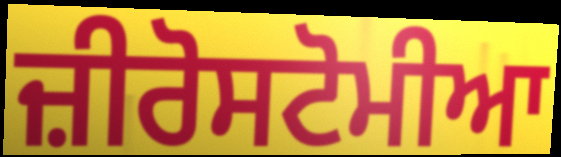
ਜ਼ੀਰੋਸਟੋਮੀਆ